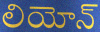
లియోన్